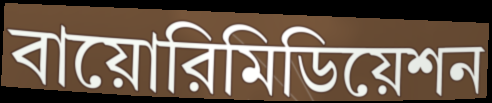
বায়োরিমিডিয়েশন